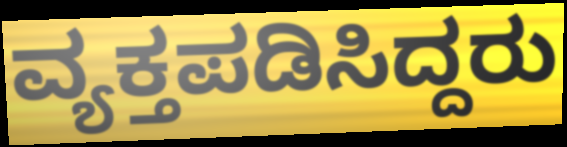
ವ್ಯಕ್ತಪಡಿಸಿದ್ದರು